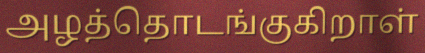
அழத்தொடங்குகிறாள்